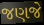
જણજે